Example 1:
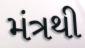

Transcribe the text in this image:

મંત્રથી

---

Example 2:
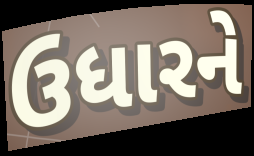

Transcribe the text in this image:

ઉધારને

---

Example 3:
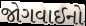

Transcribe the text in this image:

જોગવાઈનો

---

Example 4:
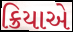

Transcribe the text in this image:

ક્રિયાએ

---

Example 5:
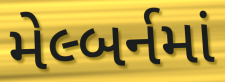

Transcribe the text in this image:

મેલ્બર્નમાં